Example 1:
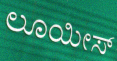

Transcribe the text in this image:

ಲೂಯೀಸ್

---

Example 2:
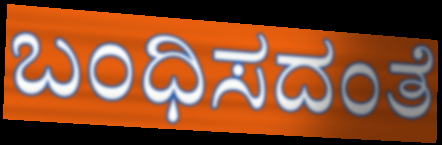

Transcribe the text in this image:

ಬಂಧಿಸದಂತೆ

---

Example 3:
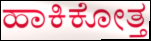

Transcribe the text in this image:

ಹಾಕಿಕೋತ್ತ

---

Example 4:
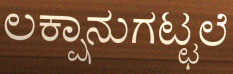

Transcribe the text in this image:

ಲಕ್ಷಾನುಗಟ್ಟಲೆ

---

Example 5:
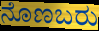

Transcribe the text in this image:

ನೊಣಬರು